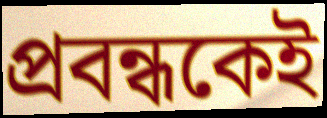
প্রবন্ধকেই